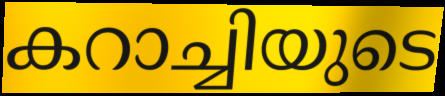
കറാച്ചിയുടെ